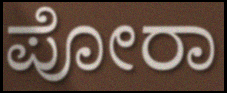
ಪೋರಾ